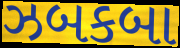
ઝબકબા